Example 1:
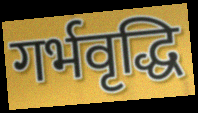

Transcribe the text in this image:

गर्भवृद्धि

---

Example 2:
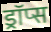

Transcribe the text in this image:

ड्रॉप्स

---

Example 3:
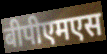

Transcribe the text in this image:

बीपीएमएस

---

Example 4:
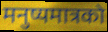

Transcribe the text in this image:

मनुष्यमात्रको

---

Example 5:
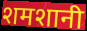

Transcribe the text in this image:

शमशानी